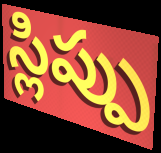
స్లిప్పు